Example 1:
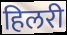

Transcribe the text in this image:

हिलरी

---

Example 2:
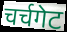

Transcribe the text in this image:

चर्चगेट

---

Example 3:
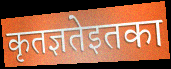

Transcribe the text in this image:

कृतज्ञतेइतका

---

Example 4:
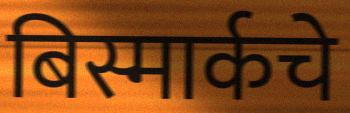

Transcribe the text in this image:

बिस्मार्कचे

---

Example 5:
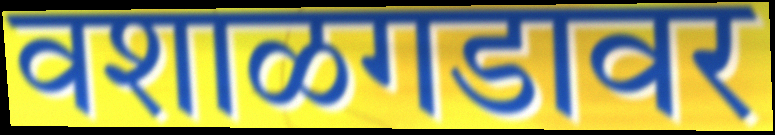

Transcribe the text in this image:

वशाळगडावर